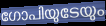
ഗോപിയുടേയും